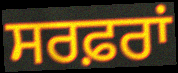
ਸਰਫ਼ਰਾਂ